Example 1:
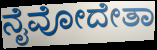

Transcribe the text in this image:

ನೈವೋದೇತಾ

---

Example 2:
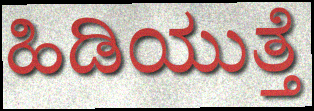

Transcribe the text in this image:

ಹಿಡಿಯುತ್ತೆ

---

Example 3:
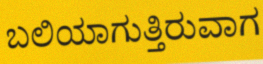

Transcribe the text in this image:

ಬಲಿಯಾಗುತ್ತಿರುವಾಗ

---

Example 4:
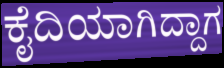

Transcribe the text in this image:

ಕೈದಿಯಾಗಿದ್ದಾಗ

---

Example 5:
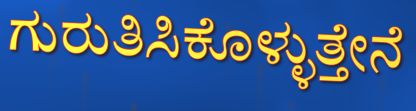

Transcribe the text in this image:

ಗುರುತಿಸಿಕೊಳ್ಳುತ್ತೇನೆ